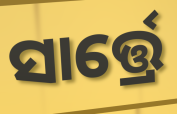
ସାର୍ତ୍ତ୍ରେ